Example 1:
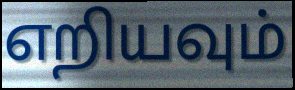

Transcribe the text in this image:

எறியவும்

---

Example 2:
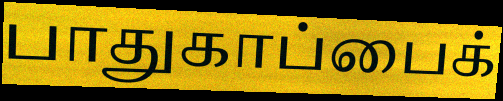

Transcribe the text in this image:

பாதுகாப்பைக்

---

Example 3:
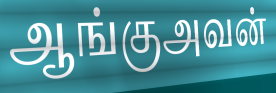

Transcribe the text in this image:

ஆங்குஅவன்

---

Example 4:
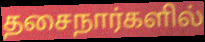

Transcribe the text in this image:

தசைநார்களில்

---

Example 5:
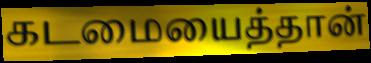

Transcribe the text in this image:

கடமையைத்தான்